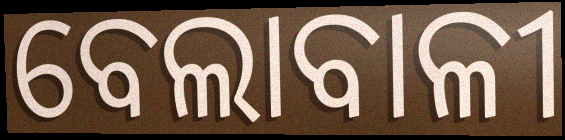
ବେଲାବାଳୀ